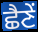
ਛੈਣੇਂ